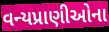
વન્યપ્રાણીઓના